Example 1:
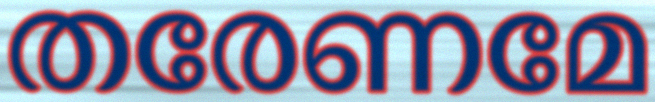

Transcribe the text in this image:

തരേണമേ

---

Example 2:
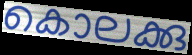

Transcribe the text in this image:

കൊലക്കു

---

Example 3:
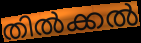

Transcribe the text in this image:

തിൽക്കൽ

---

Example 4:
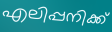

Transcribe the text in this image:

എലിപ്പനിക്ക്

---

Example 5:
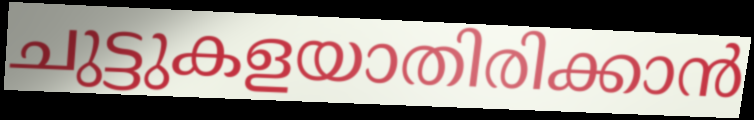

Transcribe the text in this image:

ചുട്ടുകളയാതിരിക്കാൻ